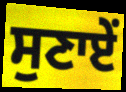
ਸੁਣਾਏਂ